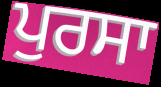
ਪੁਰਸਾ